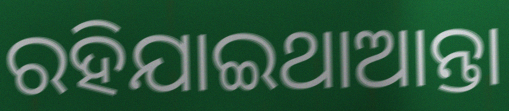
ରହିଯାଇଥାଆନ୍ତା